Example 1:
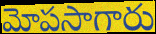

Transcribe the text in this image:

మోపసాగారు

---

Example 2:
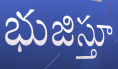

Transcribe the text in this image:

భుజిస్తూ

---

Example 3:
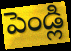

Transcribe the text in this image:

పెండ్లి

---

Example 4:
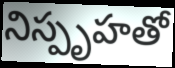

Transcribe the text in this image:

నిస్పృహతో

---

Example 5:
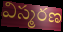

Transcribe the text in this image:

విస్మరణ